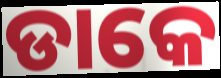
ଡାକେ